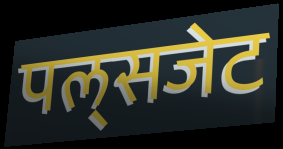
पल्सजेट